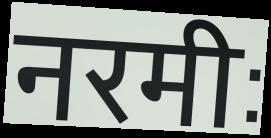
नरमीः